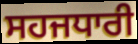
ਸਹਜਧਾਰੀ